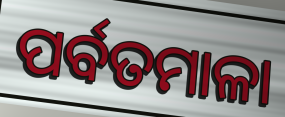
ପର୍ବତମାଳା